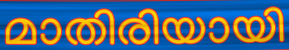
മാതിരിയായി